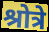
श्रोत्रे